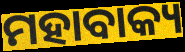
ମହାବାକ୍ୟ